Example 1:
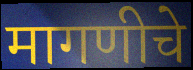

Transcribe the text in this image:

मागणीचे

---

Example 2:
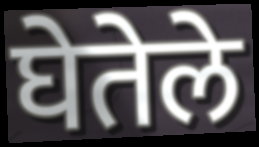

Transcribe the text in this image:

घेतेले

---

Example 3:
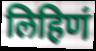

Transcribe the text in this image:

लिहिणं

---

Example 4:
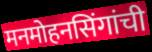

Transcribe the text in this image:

मनमोहनसिंगांची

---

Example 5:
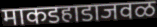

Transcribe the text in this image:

माकडहाडाजवळ